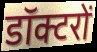
डॉक्टरों